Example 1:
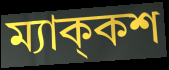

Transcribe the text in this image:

ম্যাক্‌কশ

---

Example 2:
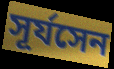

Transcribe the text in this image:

সূর্যসেন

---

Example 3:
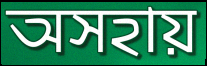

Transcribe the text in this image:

অসহায়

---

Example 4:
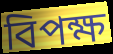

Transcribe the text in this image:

বিপক্ষ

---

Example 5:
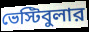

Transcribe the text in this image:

ভেস্টিবুলার